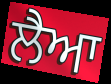
ਲੈਆ